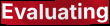
Evaluating